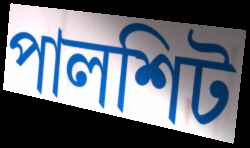
পালশিট